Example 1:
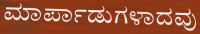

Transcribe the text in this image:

ಮಾರ್ಪಾಡುಗಳಾದವು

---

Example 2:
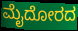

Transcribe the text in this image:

ಮೈದೋರದ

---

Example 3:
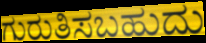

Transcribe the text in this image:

ಗುರುತಿಸಬಹುದು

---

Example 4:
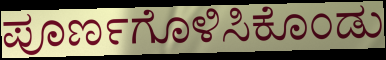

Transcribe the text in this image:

ಪೂರ್ಣಗೊಳಿಸಿಕೊಂಡು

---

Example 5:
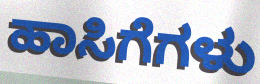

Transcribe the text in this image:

ಹಾಸಿಗೆಗಳು